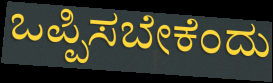
ಒಪ್ಪಿಸಬೇಕೆಂದು